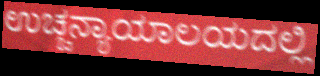
ಉಚ್ಚನ್ಯಾಯಾಲಯದಲ್ಲಿ